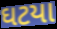
ઘટયા